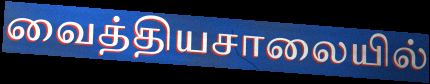
வைத்தியசாலையில்